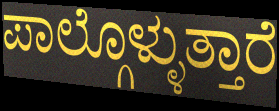
ಪಾಲ್ಗೊಳ್ಳುತ್ತಾರೆ